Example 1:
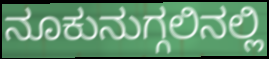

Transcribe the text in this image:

ನೂಕುನುಗ್ಗಲಿನಲ್ಲಿ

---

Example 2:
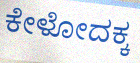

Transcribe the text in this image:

ಕೇಳೋದಕ್ಕ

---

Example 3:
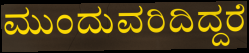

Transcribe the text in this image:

ಮುಂದುವರಿದಿದ್ದರೆ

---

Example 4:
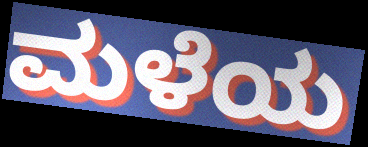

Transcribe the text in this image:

ಮಳೆಯ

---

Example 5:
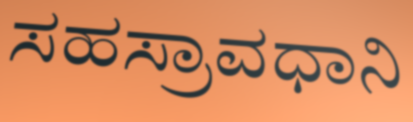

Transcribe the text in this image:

ಸಹಸ್ರಾವಧಾನಿ